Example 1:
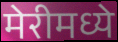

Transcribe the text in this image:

मेरीमध्ये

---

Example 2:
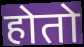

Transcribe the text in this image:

होतो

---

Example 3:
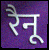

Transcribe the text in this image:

रैनू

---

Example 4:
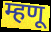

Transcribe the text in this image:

म्हणू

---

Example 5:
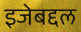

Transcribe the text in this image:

इजेबद्दल